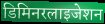
डिमिनरलाइजेशन